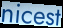
nicest